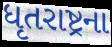
ધૃતરાષ્ટ્રના